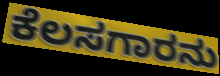
ಕೆಲಸಗಾರನು